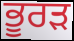
ਭੂਰੜ